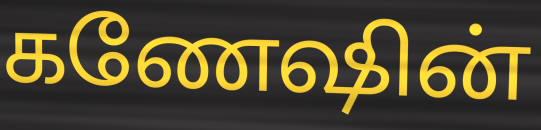
கணேஷின்